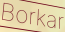
Borkar